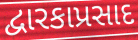
દ્વારકાપ્રસાદ